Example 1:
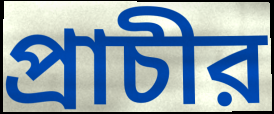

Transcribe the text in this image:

প্রাচীর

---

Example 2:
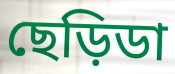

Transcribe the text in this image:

ছেড়িডা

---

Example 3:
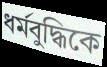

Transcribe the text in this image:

ধর্মবুদ্ধিকে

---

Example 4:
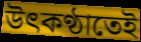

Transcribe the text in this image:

উৎকণ্ঠাতেই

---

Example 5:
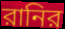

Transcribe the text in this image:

রানির